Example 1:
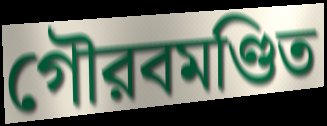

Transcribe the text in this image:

গৌরবমণ্ডিত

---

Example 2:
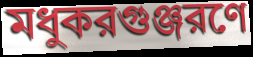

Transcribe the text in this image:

মধুকরগুঞ্জরণে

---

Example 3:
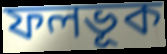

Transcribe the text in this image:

ফলভূক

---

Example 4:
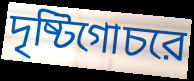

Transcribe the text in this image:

দৃষ্টিগোচরে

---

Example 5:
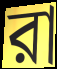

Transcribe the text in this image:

রা